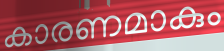
കാരണമാകും